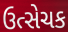
ઉત્સેચક